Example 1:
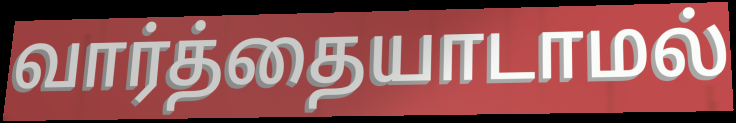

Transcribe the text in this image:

வார்த்தையாடாமல்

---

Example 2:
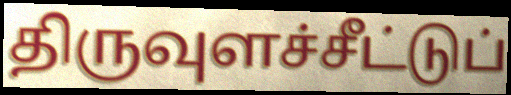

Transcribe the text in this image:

திருவுளச்சீட்டுப்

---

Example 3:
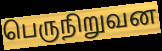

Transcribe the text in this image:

பெருநிறுவன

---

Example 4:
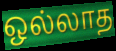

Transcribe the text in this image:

ஒல்லாத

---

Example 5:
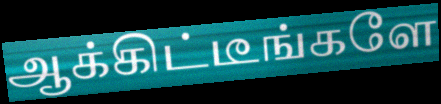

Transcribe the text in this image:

ஆக்கிட்டீங்களே